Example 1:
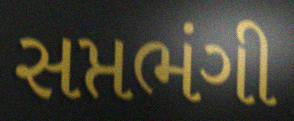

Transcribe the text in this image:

સપ્તભંગી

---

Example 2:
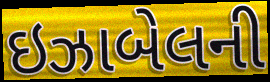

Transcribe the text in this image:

ઇઝાબેલની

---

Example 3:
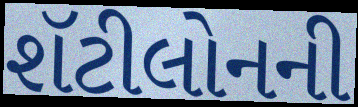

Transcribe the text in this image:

શૅટીલોનની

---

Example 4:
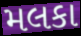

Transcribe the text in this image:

મલકા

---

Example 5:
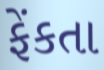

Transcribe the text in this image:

ફેંકતા